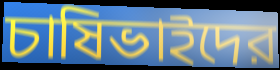
চাষিভাইদের